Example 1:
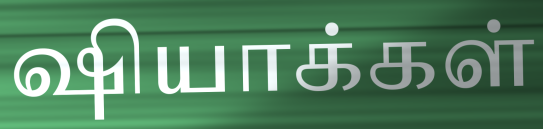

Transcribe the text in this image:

ஷியாக்கள்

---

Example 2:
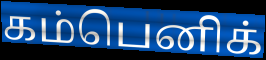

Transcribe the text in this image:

கம்பெனிக்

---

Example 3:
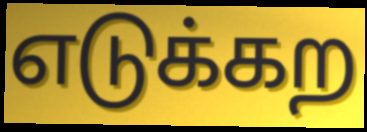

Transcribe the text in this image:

எடுக்கற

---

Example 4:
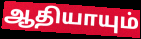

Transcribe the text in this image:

ஆதியாயும்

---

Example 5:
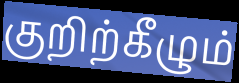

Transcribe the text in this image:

குறிற்கீழும்